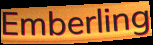
Emberling